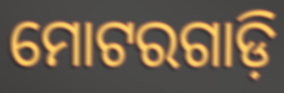
ମୋଟରଗାଡ଼ି